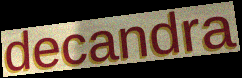
decandra